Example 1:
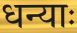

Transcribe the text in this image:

धन्याः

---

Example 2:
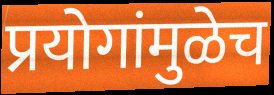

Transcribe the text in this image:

प्रयोगांमुळेच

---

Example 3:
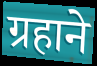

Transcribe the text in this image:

ग्रहाने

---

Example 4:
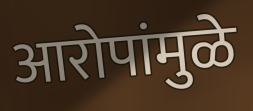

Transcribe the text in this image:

आरोपांमुळे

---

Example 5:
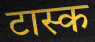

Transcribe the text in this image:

टास्क